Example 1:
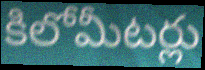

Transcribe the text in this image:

కిలోమీటర్లు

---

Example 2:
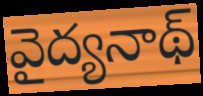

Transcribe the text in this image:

వైద్యనాథ్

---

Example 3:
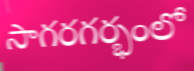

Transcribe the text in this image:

సాగరగర్భంలో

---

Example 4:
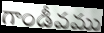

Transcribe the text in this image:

గాండీవము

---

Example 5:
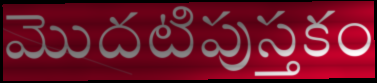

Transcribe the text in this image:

మొదటిపుస్తకం